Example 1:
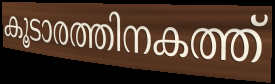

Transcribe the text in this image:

കൂടാരത്തിനകത്ത്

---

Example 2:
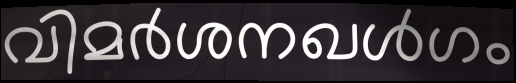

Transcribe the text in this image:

വിമർശനഖൾഗം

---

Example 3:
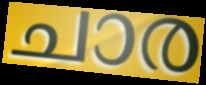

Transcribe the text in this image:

ചാര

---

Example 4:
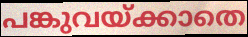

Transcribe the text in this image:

പങ്കുവയ്ക്കാതെ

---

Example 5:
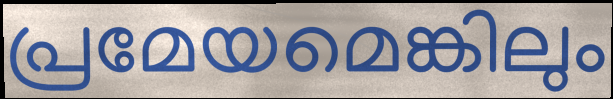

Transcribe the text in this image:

പ്രമേയമെങ്കിലും